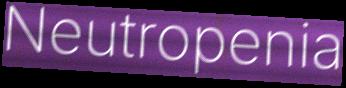
Neutropenia